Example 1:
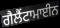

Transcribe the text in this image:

ਗੈਲੈਂਟਾਮਾਈਨ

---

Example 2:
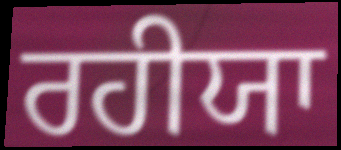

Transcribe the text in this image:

ਰਹੀਯਾ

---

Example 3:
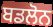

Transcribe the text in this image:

ਬਡਲੋਨ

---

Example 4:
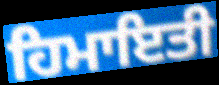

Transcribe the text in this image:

ਹਿਮਾਇਤੀ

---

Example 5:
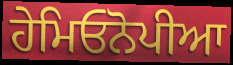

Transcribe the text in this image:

ਹੇਮਿਓਨੋਪੀਆ